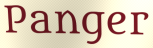
Panger